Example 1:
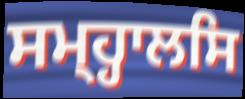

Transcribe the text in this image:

ਸਮ੍ਹ੍ਹਾਲਸਿ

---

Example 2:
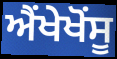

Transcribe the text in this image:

ਐਂਖੇਖੋਂਸੂ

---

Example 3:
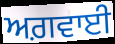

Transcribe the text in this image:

ਅਗ਼ਵਾਈ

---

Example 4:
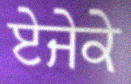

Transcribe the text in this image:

ਏਜੇਕੇ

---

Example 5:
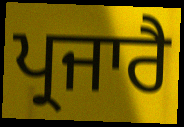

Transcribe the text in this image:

ਪ੍ਰਜਾਰੈ